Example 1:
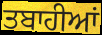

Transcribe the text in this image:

ਤਬਾਹੀਆਂ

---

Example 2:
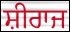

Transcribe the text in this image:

ਸ਼ੀਰਾਜ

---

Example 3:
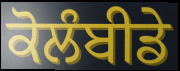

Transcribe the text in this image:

ਕੋਲੰਬੀਡੇ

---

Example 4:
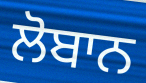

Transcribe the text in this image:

ਲੋਬਾਨ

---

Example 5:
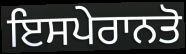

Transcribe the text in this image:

ਇਸਪੇਰਾਨਤੋ